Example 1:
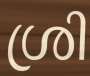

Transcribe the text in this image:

ശ്രി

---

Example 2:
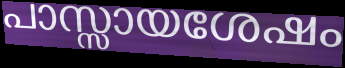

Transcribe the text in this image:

പാസ്സായശേഷം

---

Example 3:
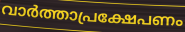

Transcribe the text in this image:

വാർത്താപ്രക്ഷേപണം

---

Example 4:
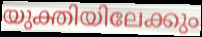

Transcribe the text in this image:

യുക്തിയിലേക്കും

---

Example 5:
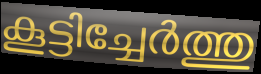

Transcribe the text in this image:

കൂട്ടിച്ചേർത്തു